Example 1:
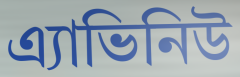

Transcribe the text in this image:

এ্যাভিনিউ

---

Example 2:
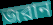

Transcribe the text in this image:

জরান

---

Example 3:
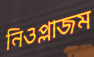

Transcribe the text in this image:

নিওপ্লাজম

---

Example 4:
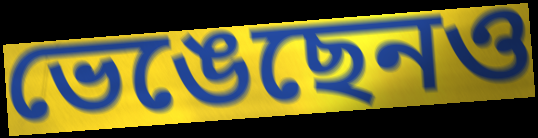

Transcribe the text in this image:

ভেঙেছেনও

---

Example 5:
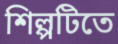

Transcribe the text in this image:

শিল্পটিতে